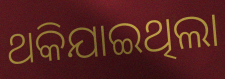
ଥକିଯାଇଥିଲା